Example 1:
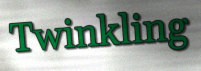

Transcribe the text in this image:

Twinkling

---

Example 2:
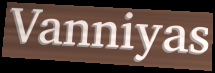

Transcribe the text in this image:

Vanniyas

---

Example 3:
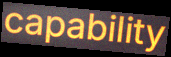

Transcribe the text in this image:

capability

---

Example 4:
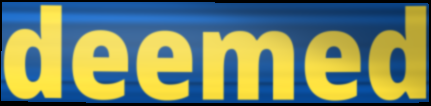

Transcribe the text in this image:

deemed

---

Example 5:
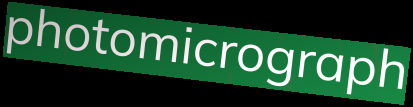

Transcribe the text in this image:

photomicrograph